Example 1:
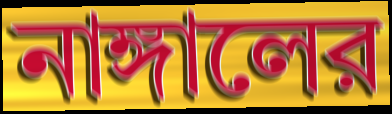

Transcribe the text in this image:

নাঙ্গালের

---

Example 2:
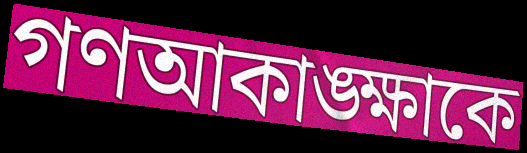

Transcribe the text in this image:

গণআকাঙ্ক্ষাকে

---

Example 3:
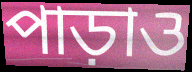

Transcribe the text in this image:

পাড়াও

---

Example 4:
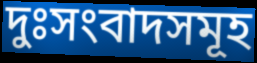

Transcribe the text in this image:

দুঃসংবাদসমূহ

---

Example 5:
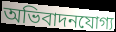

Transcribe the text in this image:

অভিবাদনযোগ্য